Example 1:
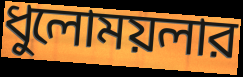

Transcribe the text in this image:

ধুলোময়লার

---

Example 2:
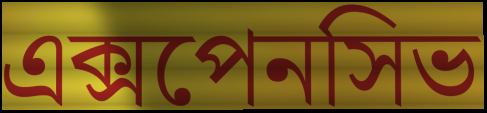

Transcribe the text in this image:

এক্সপেনসিভ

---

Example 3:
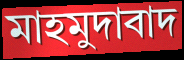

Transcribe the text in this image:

মাহমুদাবাদ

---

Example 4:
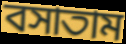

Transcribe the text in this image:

বসাতাম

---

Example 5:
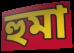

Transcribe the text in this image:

হুমা